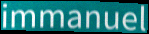
immanuel